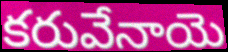
కరువేనాయె